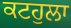
ਕਟਹੁਲਾ